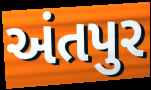
અંતપુર